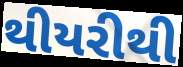
થીયરીથી